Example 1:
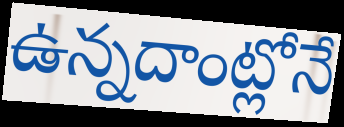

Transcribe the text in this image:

ఉన్నదాంట్లోనే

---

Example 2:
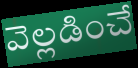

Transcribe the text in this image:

వెల్లడించే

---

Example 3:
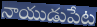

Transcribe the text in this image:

నాయుడుపేట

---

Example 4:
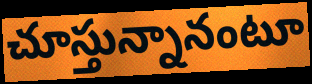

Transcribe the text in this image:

చూస్తున్నానంటూ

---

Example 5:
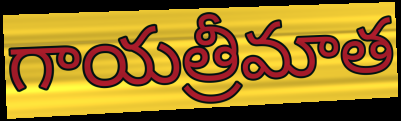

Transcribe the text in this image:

గాయత్రీమాత